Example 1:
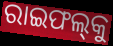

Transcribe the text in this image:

ରାଇଫଲ୍‍କୁ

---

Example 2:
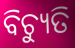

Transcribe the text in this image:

ବିଚ୍ୟୁତି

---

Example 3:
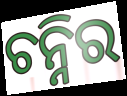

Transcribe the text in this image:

ଚନ୍ନିର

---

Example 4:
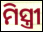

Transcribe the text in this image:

ମିସ୍ତ୍ରୀ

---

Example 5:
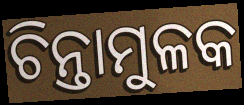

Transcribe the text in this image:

ଚିନ୍ତାମୁଳକ